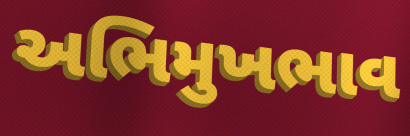
અભિમુખભાવ